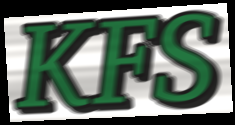
KFS